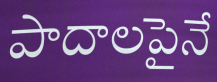
పాదాలపైనే